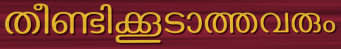
തീണ്ടിക്കൂടാത്തവരും